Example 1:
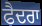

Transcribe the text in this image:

ਫੈਦਰਾ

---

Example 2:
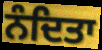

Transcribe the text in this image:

ਨੰਦਿਤਾ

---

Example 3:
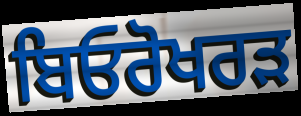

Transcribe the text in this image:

ਬਿਓਰੋਖਰੜ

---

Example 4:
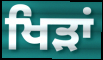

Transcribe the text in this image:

ਖਿੜਾਂ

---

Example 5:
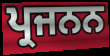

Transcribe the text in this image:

ਪ੍ਰਜਨਨ